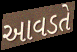
આવડતે